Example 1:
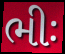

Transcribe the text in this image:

ભીઃ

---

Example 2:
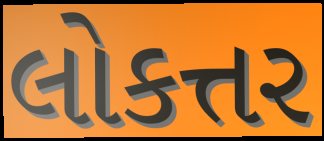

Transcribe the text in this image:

લોકત્તર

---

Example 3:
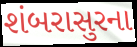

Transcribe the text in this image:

શંબરાસુરના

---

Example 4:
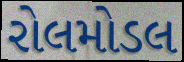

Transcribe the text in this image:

રોલમોડલ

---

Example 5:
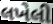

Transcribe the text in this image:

લખેલી